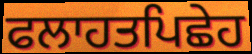
ਫਲਾਹਤਪਿਛੇਹ